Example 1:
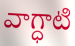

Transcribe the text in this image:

వాగ్ధాటి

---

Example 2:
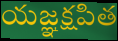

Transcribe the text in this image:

యజ్ఞక్షపిత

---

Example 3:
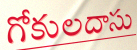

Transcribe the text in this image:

గోకులదాసు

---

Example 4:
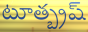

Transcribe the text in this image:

టూత్బ్రష్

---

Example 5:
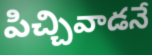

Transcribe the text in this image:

పిచ్చివాడనే